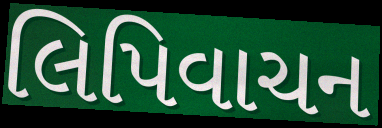
લિપિવાચન